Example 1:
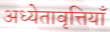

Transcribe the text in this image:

अध्येतावृत्तियाँ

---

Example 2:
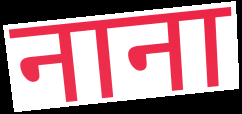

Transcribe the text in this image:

नाना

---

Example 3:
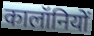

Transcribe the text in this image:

कालॉनियों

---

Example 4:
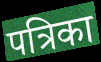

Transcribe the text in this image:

पत्रिका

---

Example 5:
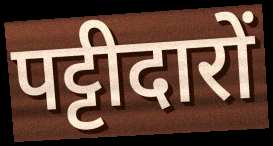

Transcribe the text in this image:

पट्टीदारों